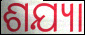
ଶଯ୍ୟା